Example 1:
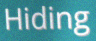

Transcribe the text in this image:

Hiding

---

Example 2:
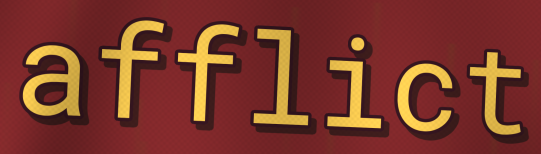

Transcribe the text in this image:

afflict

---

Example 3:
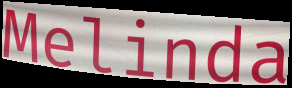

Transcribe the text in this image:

Melinda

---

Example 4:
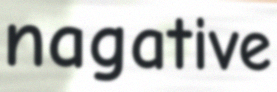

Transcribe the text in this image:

nagative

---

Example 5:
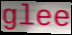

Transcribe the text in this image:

glee